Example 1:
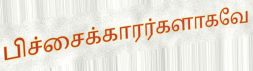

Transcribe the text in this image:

பிச்சைக்காரர்களாகவே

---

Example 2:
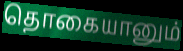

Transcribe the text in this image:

தொகையானும்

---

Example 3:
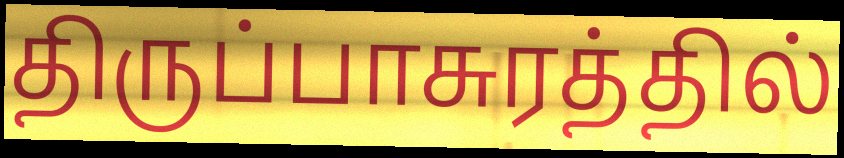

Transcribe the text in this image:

திருப்பாசுரத்தில்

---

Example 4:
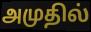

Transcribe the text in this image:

அமுதில்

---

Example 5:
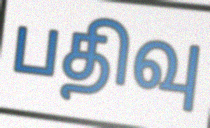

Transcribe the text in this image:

பதிவு